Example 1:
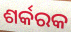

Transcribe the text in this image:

ଶର୍କରକ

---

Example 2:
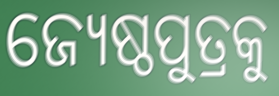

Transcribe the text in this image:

ଜ୍ୟେଷ୍ଠପୁତ୍ରକୁ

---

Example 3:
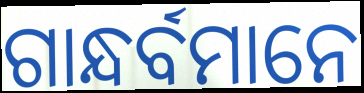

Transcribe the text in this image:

ଗାନ୍ଧର୍ବମାନେ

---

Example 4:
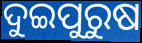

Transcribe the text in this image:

ଦୁଇପୁରୁଷ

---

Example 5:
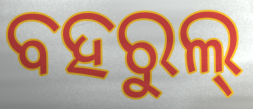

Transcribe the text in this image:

ବହରୁଲ୍